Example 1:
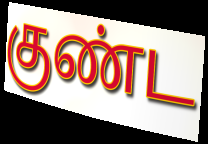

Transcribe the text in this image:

குண்ட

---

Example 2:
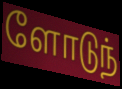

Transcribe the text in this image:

ளோடுந்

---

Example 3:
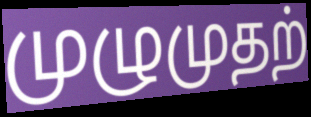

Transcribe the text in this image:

முழுமுதற்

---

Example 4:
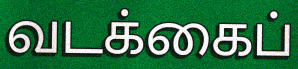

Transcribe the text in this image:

வடக்கைப்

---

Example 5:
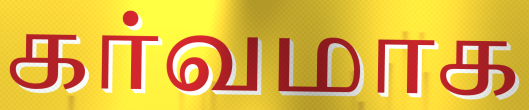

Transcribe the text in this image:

கர்வமாக